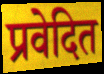
प्रवेदित